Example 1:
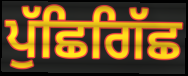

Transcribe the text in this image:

ਪੁੱਛਿਗਿੱਛ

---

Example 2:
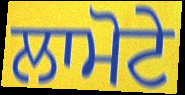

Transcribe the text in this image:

ਲਾਮੋਟੇ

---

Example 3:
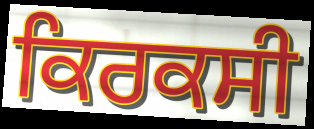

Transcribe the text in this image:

ਕਿਰਕਸੀ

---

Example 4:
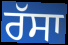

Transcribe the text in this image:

ਰੱਸਾ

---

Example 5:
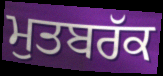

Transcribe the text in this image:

ਮੁਤਬਰੱਕ